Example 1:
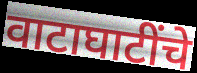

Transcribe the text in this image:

वाटाघाटींचे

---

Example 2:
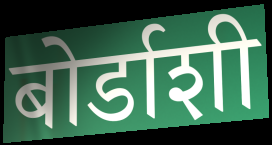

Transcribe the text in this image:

बोर्डाशी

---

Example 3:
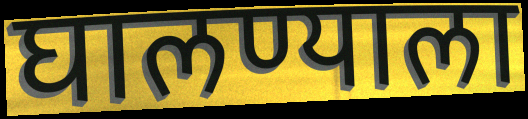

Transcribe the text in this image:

घालण्याला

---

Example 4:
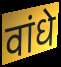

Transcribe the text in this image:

वांधे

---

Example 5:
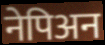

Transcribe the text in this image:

नेपिअन